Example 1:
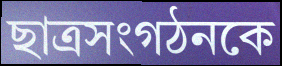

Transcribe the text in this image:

ছাত্রসংগঠনকে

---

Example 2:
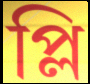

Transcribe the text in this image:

প্লি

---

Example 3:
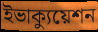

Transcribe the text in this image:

ইভাক্যুয়েশন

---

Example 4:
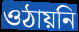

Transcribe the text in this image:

ওঠায়নি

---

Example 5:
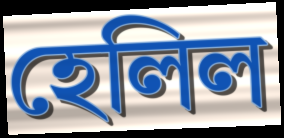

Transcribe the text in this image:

হেলিল